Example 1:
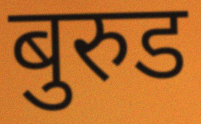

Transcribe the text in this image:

बुरुड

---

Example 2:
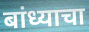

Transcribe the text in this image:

बांध्याचा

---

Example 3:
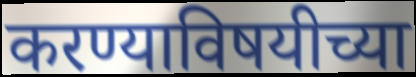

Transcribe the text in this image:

करण्याविषयीच्या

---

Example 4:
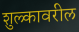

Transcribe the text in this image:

शुल्कावरील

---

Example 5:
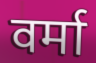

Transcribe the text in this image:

वर्मा